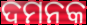
ଦମନକ